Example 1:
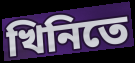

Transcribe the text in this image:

খিনিতে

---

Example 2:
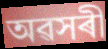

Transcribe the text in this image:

অৱসৰী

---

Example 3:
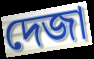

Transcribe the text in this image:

দেজা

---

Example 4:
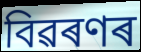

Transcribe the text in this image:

বিৱৰণৰ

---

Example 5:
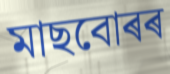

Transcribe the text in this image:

মাছবোৰৰ